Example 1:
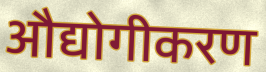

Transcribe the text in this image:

औद्योगीकरण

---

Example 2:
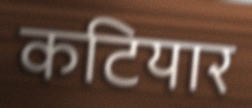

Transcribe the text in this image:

कटियार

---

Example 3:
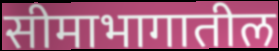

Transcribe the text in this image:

सीमाभागातील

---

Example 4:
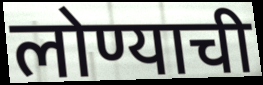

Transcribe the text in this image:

लोण्याची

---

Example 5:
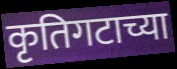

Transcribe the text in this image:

कृतिगटाच्या